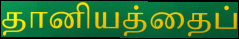
தானியத்தைப்